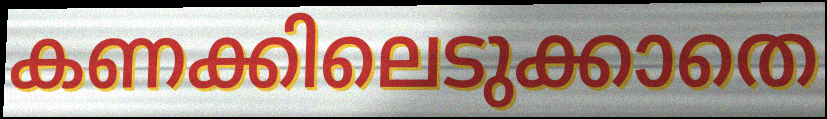
കണക്കിലെടുക്കാതെ